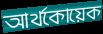
আর্থকোয়েক